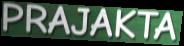
PRAJAKTA